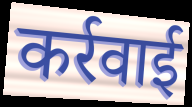
कर्रवाई